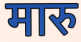
मारु